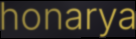
honarya